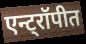
एन्ट्रॉपीत